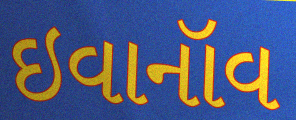
ઇવાનૉવ